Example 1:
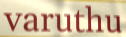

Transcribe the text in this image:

varuthu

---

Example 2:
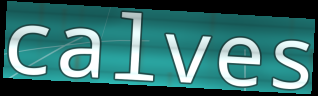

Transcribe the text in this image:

calves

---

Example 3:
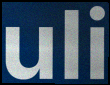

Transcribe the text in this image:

uli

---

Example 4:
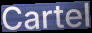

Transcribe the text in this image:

Cartel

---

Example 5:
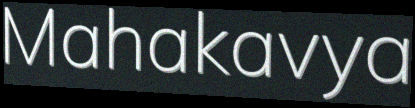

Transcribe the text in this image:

Mahakavya